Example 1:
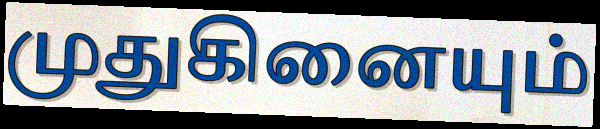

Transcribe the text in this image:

முதுகினையும்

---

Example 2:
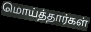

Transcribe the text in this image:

மொய்த்தார்கள்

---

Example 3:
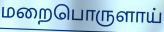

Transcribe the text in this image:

மறைபொருளாய்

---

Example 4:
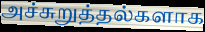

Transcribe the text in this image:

அச்சுறுத்தல்களாக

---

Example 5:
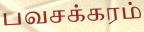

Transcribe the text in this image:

பவசக்கரம்